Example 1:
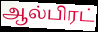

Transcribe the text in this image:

ஆல்பிரட்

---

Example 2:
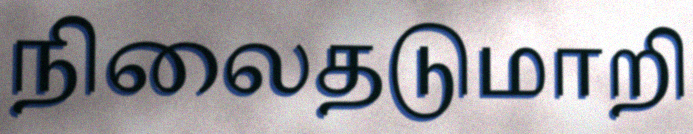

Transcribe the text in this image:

நிலைதடுமாறி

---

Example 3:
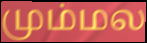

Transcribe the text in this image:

மும்மல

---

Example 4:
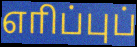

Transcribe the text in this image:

எரிப்புப்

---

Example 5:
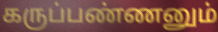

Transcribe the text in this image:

கருப்பண்ணனும்